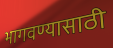
भागवण्यासाठी